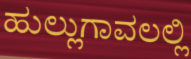
ಹುಲ್ಲುಗಾವಲಲ್ಲಿ